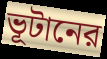
ভূটানের